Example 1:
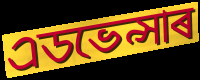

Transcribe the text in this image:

এডভেন্সাৰ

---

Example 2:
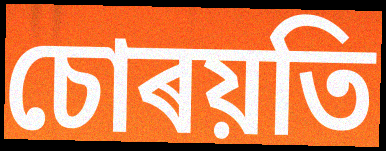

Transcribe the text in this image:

চোৰয়তি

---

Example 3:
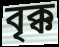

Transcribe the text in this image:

বৃক্ক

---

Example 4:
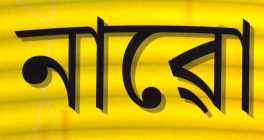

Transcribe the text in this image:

নাৱো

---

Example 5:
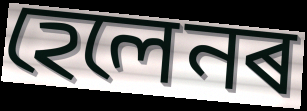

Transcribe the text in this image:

হেলেনৰ